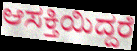
ಆಸಕ್ತಿಯಿದ್ದರೆ